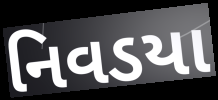
નિવડયા